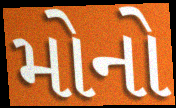
મોનો